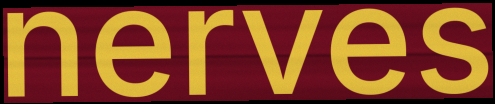
nerves